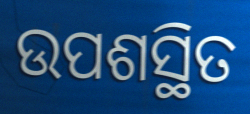
ଉପଶସ୍ଥିତ